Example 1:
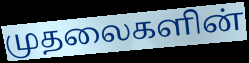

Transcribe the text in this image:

முதலைகளின்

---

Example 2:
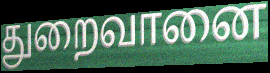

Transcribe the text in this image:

துறைவானை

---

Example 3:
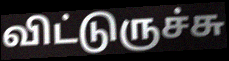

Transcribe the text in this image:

விட்டுருச்சு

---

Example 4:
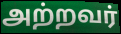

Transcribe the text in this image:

அற்றவர்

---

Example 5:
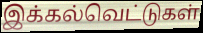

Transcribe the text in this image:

இக்கல்வெட்டுகள்